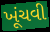
ખૂંચવી